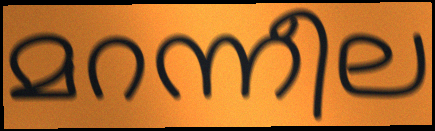
മറന്നീല